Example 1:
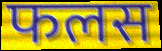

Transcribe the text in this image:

फलस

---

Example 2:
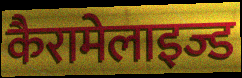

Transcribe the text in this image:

कैरामेलाइज्ड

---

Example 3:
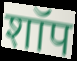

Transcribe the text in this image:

शॉप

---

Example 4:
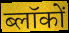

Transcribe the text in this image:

ब्लॉकों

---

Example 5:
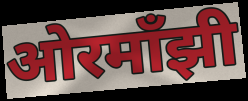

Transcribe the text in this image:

ओरमाँझी